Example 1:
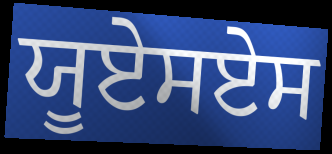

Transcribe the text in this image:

ਯੂਏਸਏਸ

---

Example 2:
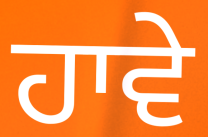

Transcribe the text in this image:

ਹਾਵੇ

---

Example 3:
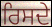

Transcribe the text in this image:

ਰਿਸਦੇ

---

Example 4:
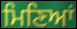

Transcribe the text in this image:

ਮਿਣਿਆਂ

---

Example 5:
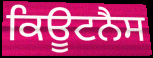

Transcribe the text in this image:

ਕਿਊਟਨੈਸ